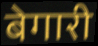
बेगारी